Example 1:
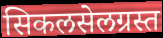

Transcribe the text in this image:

सिकलसेलग्रस्त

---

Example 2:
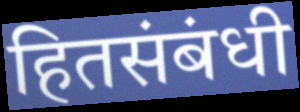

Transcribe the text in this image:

हितसंबंधी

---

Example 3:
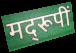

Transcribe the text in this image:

मद्‌रूपीं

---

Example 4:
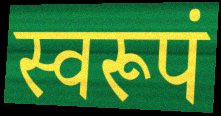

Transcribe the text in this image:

स्वरूपं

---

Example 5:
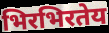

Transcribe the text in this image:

भिरभिरतेय